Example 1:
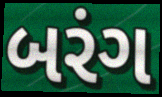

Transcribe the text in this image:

બરંગ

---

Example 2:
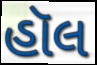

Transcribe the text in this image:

હૉલ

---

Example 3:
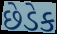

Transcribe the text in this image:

છેડેક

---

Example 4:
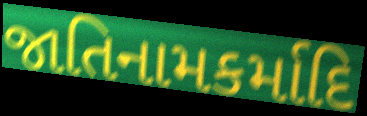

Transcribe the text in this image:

જાતિનામકર્માદિ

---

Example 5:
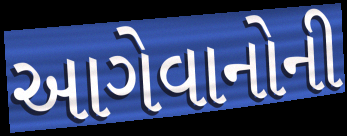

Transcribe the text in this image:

આગેવાનોની